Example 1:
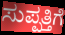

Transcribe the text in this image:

ಸುಪ್ಪತ್ತಿಗೆ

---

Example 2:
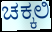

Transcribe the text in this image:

ಚಕ್ಕಲಿ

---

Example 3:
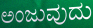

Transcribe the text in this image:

ಅಂಜುವುದು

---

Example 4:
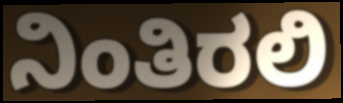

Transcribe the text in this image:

ನಿಂತಿರಲಿ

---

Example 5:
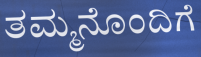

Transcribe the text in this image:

ತಮ್ಮನೊಂದಿಗೆ